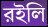
রইলি